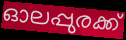
ഓലപ്പുരക്ക്